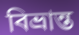
বিভ্ৰান্ত